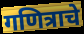
गणित्राचे